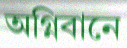
অগ্নিবানে